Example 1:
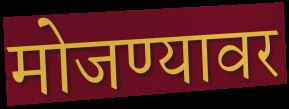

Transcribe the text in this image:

मोजण्यावर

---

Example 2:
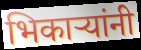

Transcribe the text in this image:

भिकाऱ्यांनी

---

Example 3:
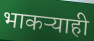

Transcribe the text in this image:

भाकऱ्याही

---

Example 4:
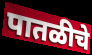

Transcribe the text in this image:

पातळीचे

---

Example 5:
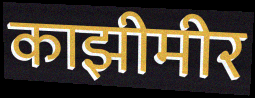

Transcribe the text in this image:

काझीमीर